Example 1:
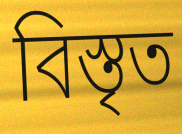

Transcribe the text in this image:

বিস্তৃত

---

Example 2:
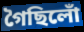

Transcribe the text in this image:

গৈছিলোঁ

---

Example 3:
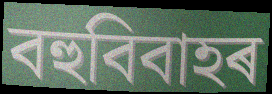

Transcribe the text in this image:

বহুবিবাহৰ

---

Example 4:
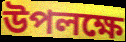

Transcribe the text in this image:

উপলক্ষে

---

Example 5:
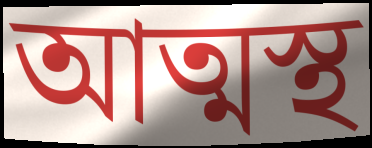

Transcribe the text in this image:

আত্মস্থ